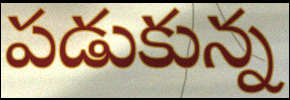
పడుకున్న